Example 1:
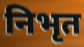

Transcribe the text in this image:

निभृत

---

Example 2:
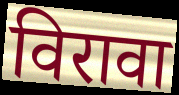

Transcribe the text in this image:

विरावा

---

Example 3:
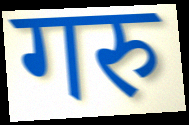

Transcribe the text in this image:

गरु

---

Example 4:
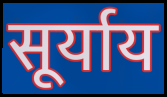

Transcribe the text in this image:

सूर्याय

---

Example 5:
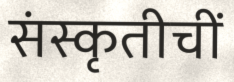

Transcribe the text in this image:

संस्कृतीचीं